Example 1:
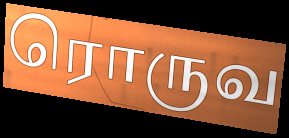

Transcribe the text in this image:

ரொருவ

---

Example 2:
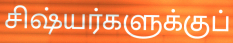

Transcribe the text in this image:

சிஷ்யர்களுக்குப்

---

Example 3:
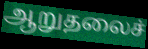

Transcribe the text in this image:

ஆறுதலைச்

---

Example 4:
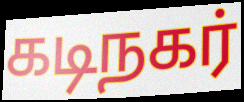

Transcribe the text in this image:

கடிநகர்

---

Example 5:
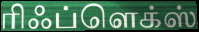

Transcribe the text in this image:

ரிஃப்ளெக்ஸ்